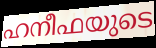
ഹനീഫയുടെ